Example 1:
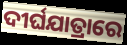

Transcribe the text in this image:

ଦୀର୍ଘଯାତ୍ରାରେ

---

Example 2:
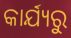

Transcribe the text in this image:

କାର୍ଯ୍ୟରୁ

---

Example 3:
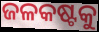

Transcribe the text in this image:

ଜଳକଷ୍ଟକୁ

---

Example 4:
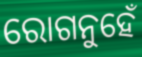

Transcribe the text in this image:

ରୋଗନୁହେଁ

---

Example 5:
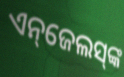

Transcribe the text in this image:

ଏନ୍‌ଜେଲସ୍‌ଙ୍କ